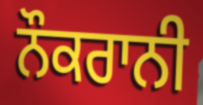
ਨੌਕਰਾਨੀ